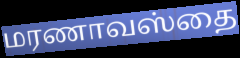
மரணாவஸ்தை